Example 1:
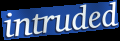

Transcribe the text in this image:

intruded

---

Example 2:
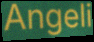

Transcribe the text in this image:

Angeli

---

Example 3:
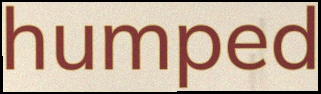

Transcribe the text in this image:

humped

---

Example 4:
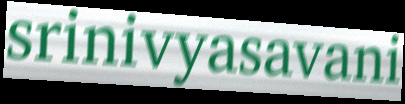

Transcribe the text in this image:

srinivyasavani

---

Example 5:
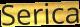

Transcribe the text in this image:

Serica